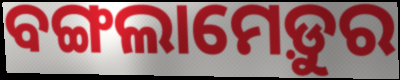
ବଙ୍ଗଲାମେଡ଼ୁର